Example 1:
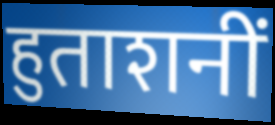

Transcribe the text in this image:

हुताशनीं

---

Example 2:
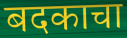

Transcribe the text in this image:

बदकाचा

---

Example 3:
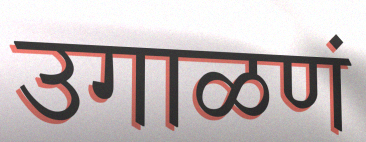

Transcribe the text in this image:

उगाळणं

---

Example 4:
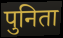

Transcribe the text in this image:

पुनिता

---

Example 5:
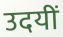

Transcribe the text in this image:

उदयीं